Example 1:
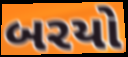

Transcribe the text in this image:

બરયો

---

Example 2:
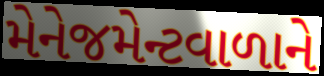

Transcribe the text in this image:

મેનેજમેન્ટવાળાને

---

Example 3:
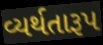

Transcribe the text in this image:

વ્યર્થતારૂપ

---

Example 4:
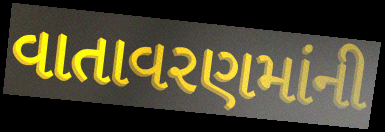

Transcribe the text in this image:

વાતાવરણમાંની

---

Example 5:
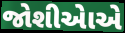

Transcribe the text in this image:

જોશીએાએ